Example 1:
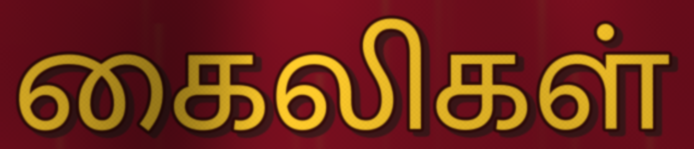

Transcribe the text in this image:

கைலிகள்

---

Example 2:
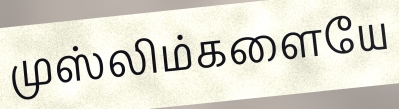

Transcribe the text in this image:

முஸ்லிம்களையே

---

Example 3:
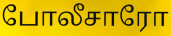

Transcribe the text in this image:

போலீசாரோ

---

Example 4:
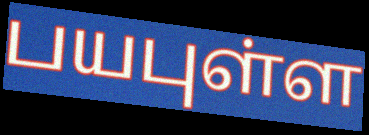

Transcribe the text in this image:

பயபுள்ள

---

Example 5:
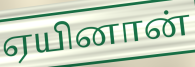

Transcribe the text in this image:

ஏயினான்